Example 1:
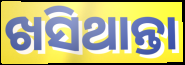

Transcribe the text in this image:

ଖସିଥାନ୍ତା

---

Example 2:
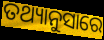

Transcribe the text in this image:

ତଥ୍ୟାନୁସାରେ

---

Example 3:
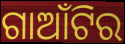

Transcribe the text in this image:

ଗାଆଁଟିର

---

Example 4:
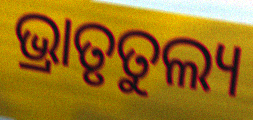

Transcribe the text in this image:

ଭ୍ରାତୃତୁଲ୍ୟ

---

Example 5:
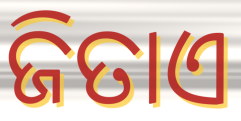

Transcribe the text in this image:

ଜିତାଏ